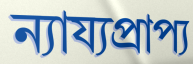
ন্যায্যপ্রাপ্য